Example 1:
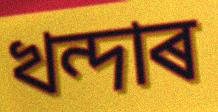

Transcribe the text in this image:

খন্দাৰ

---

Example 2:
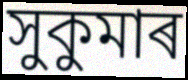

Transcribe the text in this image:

সুকুমাৰ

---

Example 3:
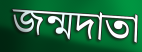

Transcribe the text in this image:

জন্মদাতা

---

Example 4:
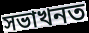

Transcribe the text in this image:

সভাখনত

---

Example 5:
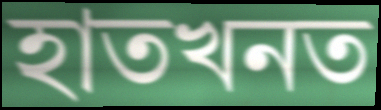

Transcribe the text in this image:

হাতখনত